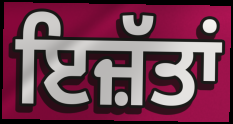
ਇਜ਼ੱਤਾਂ